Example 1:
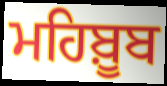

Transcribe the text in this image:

ਮਹਿਬ਼ੂਬ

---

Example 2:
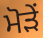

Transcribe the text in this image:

ਮੋੜੇਂ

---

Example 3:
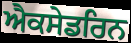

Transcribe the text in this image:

ਐਕਸੇਡਰਿਨ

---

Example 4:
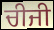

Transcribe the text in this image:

ਚੀਜੀ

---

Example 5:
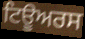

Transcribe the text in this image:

ਟਿਊਅਰਸ